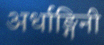
अर्धाङ्गिनी